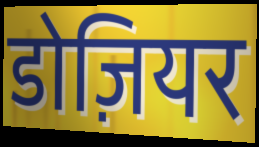
डोज़ियर